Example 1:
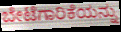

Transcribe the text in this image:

ಬೇಟೆಗಾರಿಕೆಯನ್ನು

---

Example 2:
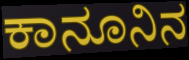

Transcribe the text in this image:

ಕಾನೂನಿನ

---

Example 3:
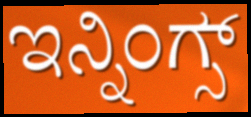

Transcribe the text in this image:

ಇನ್ನಿಂಗ್ಸ್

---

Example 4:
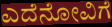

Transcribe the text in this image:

ಎದೆನೋವಿಗೆ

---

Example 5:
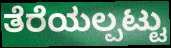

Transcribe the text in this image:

ತೆರೆಯಲ್ಪಟ್ಟು